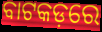
ବାଟକଡ଼ରେ